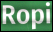
Ropi